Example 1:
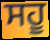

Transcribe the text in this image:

ਸਹੂ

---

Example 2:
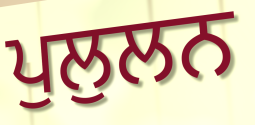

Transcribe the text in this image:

ਪੁਲੁਲਨ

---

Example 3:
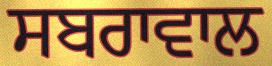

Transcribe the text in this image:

ਸਬਰਾਵਾਲ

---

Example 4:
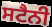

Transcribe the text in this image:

ਸਟੈਨੀ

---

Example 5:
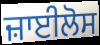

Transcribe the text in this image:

ਜ਼ਾਈਲੋਸ